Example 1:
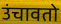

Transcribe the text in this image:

उंचावतो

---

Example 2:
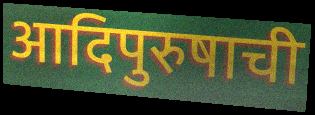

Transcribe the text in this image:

आदिपुरुषाची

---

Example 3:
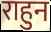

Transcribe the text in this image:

राहुन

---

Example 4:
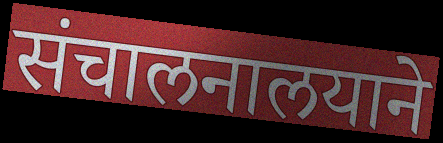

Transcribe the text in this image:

संचालनालयाने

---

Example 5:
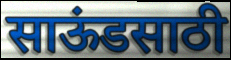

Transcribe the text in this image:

साऊंडसाठी